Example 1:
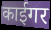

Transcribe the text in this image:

काईगर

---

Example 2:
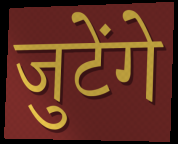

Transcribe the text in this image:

जुटेंगे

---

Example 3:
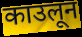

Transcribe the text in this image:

काउलून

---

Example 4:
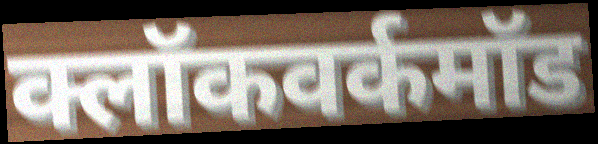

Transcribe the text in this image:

क्लॉकवर्कमॉड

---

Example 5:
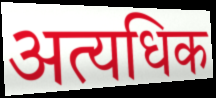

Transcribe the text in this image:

अत्‍यधिक